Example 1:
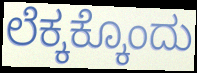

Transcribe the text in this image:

ಲೆಕ್ಕಕ್ಕೊಂದು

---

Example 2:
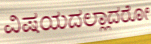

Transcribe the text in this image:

ವಿಷಯದಲ್ಲಾದರೋ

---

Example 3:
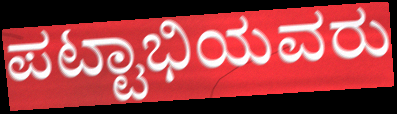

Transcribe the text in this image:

ಪಟ್ಟಾಭಿಯವರು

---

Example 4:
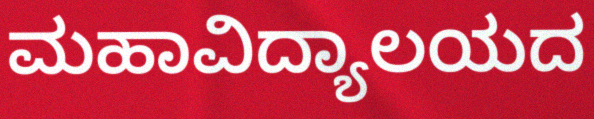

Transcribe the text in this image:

ಮಹಾವಿದ್ಯಾಲಯದ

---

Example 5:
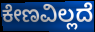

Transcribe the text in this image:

ಕೇಣವಿಲ್ಲದೆ